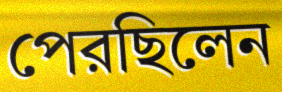
পেরছিলেন